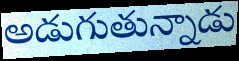
అడుగుతున్నాడు